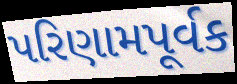
પરિણામપૂર્વક